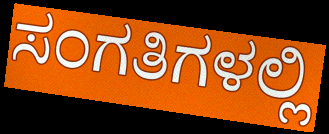
ಸಂಗತಿಗಳಲ್ಲಿ